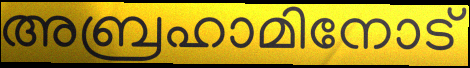
അബ്രഹാമിനോട്